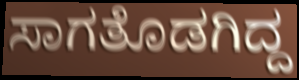
ಸಾಗತೊಡಗಿದ್ದ